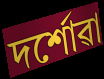
দৰ্শোৱা